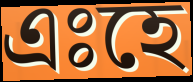
এঃহে